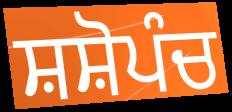
ਸ਼ਸ਼ੋਪੰਚ